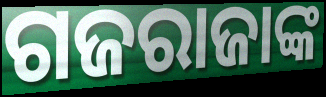
ଗଜରାଜାଙ୍କ